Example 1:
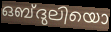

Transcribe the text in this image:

ഒബ്ദുലിയൊ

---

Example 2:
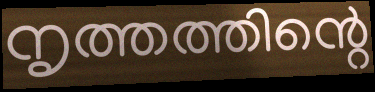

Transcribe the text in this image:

നൃത്തത്തിന്റെ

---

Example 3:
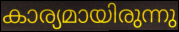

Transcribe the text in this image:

കാര്യമായിരുന്നു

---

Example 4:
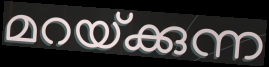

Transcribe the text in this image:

മറയ്‌ക്കുന്ന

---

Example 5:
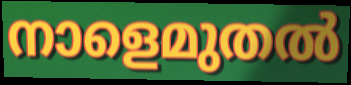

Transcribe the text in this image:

നാളെമുതൽ